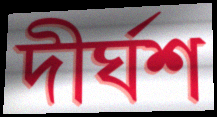
দীর্ঘশ